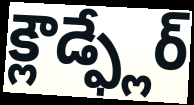
క్లౌడ్ఫ్లేర్